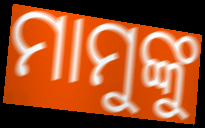
ମାମୁଙ୍କୁ